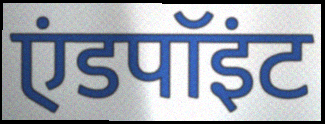
एंडपॉइंट